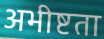
अभीष्टता